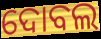
ଦୋବଲ